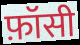
फ़ॉसी